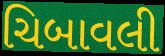
ચિબાવલી